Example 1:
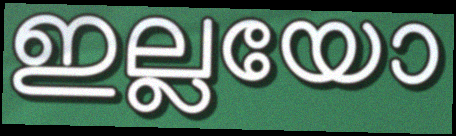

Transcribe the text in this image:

ഇല്ലയോ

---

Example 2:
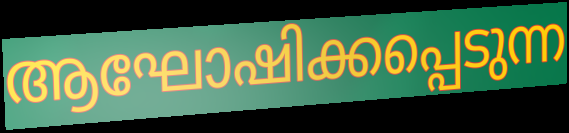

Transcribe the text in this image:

ആഘോഷിക്കപ്പെടുന്ന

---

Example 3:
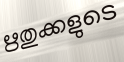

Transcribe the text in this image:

ഋതുക്കളുടെ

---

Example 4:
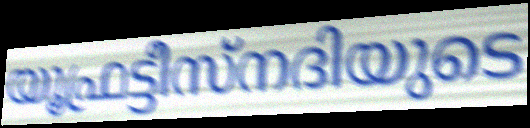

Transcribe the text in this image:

യൂഫ്രട്ടീസ്നദിയുടെ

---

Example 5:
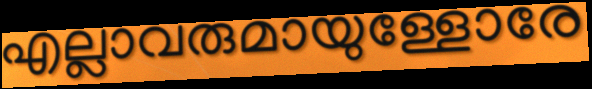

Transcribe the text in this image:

എല്ലാവരുമായുള്ളോരേ